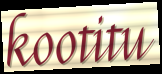
kootitu